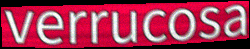
verrucosa